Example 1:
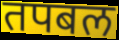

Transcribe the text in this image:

तपबल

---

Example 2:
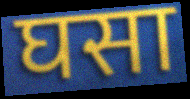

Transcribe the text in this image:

घसा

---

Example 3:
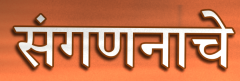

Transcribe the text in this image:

संगणनाचे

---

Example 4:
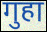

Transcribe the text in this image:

गुहा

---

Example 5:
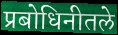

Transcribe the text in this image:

प्रबोधिनीतले